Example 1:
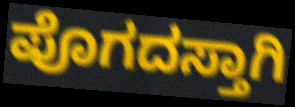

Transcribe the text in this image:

ಪೊಗದಸ್ತಾಗಿ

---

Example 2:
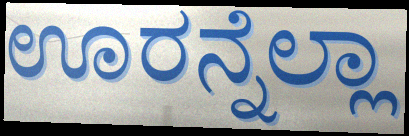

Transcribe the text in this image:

ಊರನ್ನೆಲ್ಲಾ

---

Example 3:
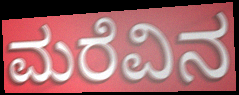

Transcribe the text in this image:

ಮರೆವಿನ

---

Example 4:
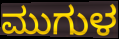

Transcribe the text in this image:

ಮುಗುಳ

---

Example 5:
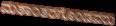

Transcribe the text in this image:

ಮತಾಂತರಗೊಂಡವರು